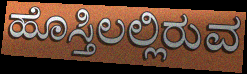
ಹೊಸ್ತಿಲಲ್ಲಿರುವ